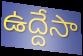
ఉద్దేసా